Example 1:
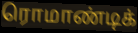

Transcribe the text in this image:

ரொமாண்டிக்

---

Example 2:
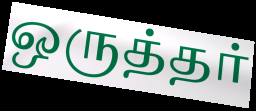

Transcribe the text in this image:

ஒருத்தர்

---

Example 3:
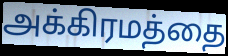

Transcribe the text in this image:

அக்கிரமத்தை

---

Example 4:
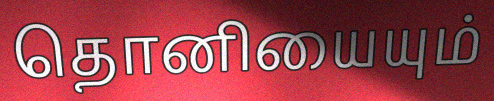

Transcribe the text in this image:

தொனியையும்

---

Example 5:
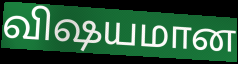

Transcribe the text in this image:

விஷயமான